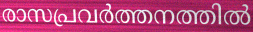
രാസപ്രവർത്തനത്തിൽ